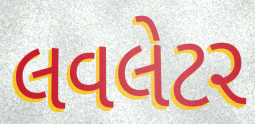
લવલેટર